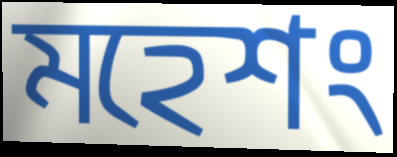
মহেশং